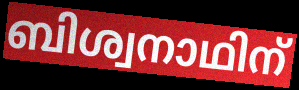
ബിശ്വനാഥിന്